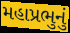
મહાપ્રભુનું